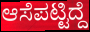
ಆಸೆಪಟ್ಟಿದ್ದೆ